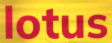
lotus